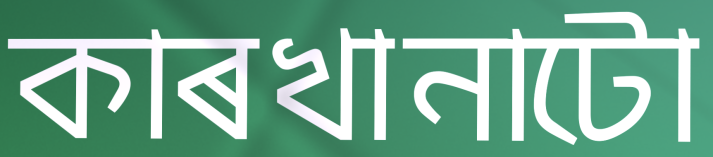
কাৰখানাটো